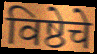
विष्ठेचे